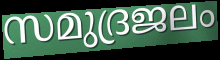
സമുദ്രജലം